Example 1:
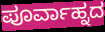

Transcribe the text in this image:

ಪೂರ್ವಾಹ್ನದ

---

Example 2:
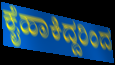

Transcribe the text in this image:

ಕೈಹಾಕಿದ್ದರಿಂದ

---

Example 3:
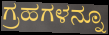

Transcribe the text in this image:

ಗ್ರಹಗಳನ್ನೂ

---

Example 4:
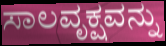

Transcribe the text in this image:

ಸಾಲವೃಕ್ಷವನ್ನು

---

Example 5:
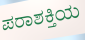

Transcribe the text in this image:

ಪರಾಶಕ್ತಿಯ